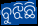
ବୁଝିଛି